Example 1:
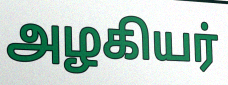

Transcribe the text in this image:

அழகியர்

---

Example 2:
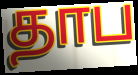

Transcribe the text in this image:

தாப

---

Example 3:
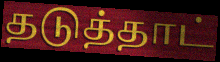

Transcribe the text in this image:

தடுத்தாட்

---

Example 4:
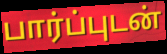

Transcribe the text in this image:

பார்ப்புடன்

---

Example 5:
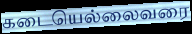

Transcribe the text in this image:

கடையெல்லைவரை